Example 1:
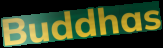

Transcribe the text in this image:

Buddhas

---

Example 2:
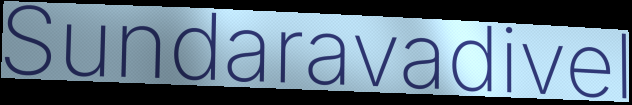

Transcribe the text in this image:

Sundaravadivel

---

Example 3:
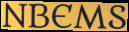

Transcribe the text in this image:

NBEMS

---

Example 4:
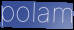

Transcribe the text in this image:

polam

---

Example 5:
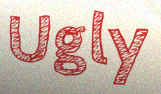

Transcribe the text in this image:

Ugly